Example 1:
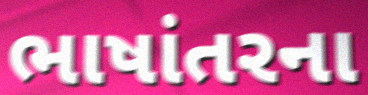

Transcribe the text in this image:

ભાષાંતરના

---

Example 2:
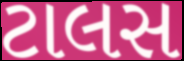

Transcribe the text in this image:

ટાલસ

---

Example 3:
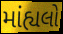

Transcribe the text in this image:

માંહ્યલો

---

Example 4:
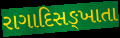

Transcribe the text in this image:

રાગાદિસઙ્ખાતા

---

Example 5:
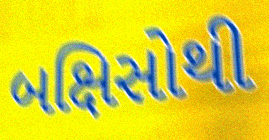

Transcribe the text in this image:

બક્ષિસોથી